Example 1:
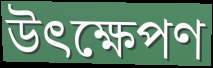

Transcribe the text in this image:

উৎক্ষেপণ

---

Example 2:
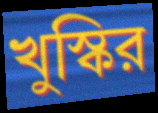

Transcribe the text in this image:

খুস্কির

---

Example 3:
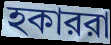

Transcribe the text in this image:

হকাররা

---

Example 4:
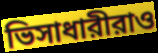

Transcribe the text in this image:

ভিসাধারীরাও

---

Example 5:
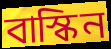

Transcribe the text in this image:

বাস্কিন